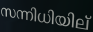
സന്നിധിയില്